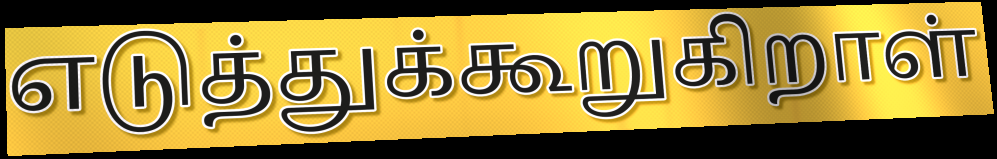
எடுத்துக்கூறுகிறாள்